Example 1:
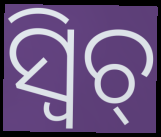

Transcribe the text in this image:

ସ୍ଵିଚ୍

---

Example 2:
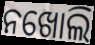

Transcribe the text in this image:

ନଖୋଲି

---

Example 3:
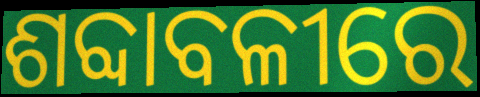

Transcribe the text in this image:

ଶବ୍ଦାବଳୀରେ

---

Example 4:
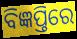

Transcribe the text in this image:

ବିଜ୍ଞପ୍ତିରେ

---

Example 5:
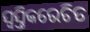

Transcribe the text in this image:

ସ୍ୱସ୍ତିକରେଚିତ